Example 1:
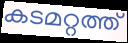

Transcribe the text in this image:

കടമറ്റത്ത്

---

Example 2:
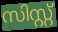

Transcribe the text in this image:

സിസ്റ്റ്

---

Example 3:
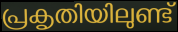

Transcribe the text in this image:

പ്രകൃതിയിലുണ്ട്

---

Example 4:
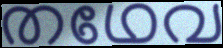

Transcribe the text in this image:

തഥേവ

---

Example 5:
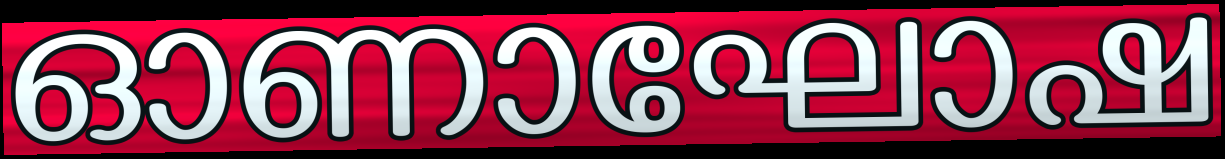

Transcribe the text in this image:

ഓണാഘോഷ